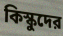
কিস্কুদের